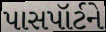
પાસપૉર્ટને